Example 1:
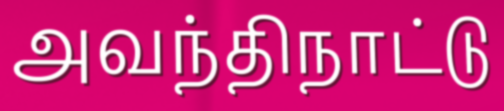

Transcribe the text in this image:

அவந்திநாட்டு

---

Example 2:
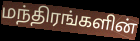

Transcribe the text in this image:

மந்திரங்களின்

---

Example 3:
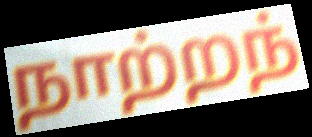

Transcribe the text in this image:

நாற்றந்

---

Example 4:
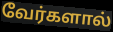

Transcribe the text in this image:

வேர்களால்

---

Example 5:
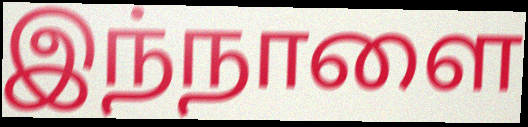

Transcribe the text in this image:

இந்நாளை